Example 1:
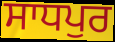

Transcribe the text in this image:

ਸਾਧਪੁਰ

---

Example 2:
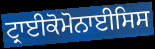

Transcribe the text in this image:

ਟ੍ਰਾਈਕੋਮੋਨਾਈਸਿਸ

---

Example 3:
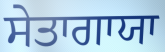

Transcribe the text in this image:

ਸੇਤਾਗਾਯਾ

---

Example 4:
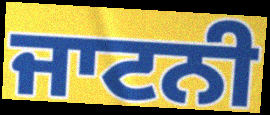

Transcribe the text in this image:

ਜਾਟਨੀ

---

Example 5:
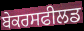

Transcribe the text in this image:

ਬੇਕਰਸਫੀਲਡ